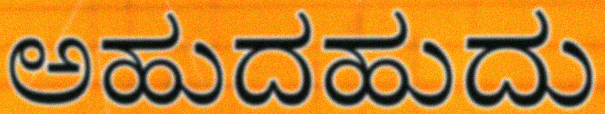
ಅಹುದಹುದು